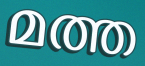
മത്ത